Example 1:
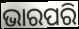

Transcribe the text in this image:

ଭାରପରି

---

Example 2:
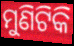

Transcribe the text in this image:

ମୁଣିଟିକି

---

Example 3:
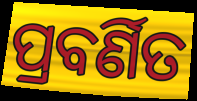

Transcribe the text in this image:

ପ୍ରବର୍ଣିତ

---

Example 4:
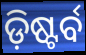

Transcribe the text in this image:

ଡ଼ିଷ୍ଟର୍ବ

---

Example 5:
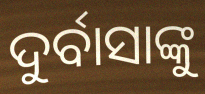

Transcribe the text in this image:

ଦୁର୍ବାସାଙ୍କୁ